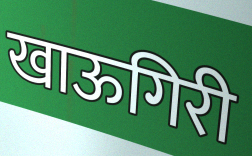
खाऊगिरी